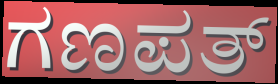
ಗಣಪತ್